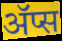
ॲप्स